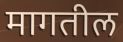
मागतील